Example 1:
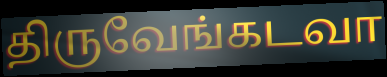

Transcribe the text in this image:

திருவேங்கடவா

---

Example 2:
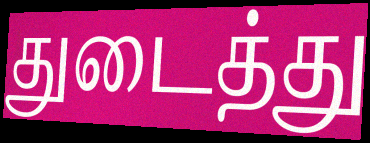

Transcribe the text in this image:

துடைத்து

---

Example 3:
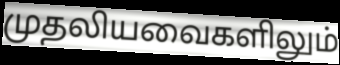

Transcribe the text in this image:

முதலியவைகளிலும்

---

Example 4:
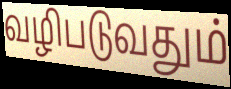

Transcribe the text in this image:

வழிபடுவதும்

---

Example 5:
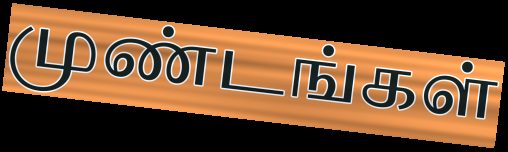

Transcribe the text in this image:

முண்டங்கள்